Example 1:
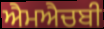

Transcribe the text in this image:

ਐਮਐਚਬੀ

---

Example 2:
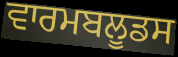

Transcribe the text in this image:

ਵਾਰਮਬਲੂਡਸ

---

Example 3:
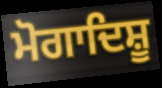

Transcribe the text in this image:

ਮੋਗਾਦਿਸ਼ੂ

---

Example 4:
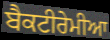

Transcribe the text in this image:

ਬੈਕਟੀਰੇਮੀਆ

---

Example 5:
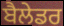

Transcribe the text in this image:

ਬੈਲੇਡਰ